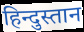
हिन्दुस्तान